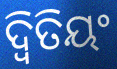
ଦ୍ୱିତିୟଂ